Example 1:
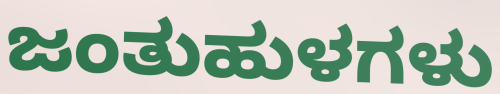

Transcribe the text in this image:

ಜಂತುಹುಳಗಳು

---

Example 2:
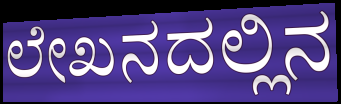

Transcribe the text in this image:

ಲೇಖನದಲ್ಲಿನ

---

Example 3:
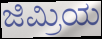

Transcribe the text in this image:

ಜಿಮ್ರಿಯ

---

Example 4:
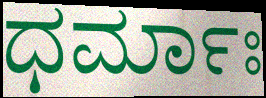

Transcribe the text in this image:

ಧರ್ಮಾಃ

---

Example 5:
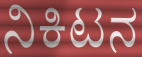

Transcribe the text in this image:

ನಿಕಿಟನ